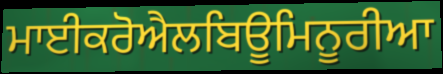
ਮਾਈਕਰੋਐਲਬਿਊਮਿਨੂਰੀਆ